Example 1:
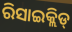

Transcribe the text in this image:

ରିସାଇକ୍ଲିଡ୍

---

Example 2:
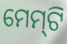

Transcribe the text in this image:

ମେମ୍‍ଟି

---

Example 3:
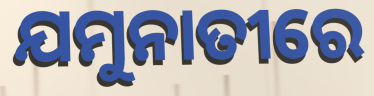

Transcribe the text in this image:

ଯମୁନାତୀରେ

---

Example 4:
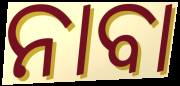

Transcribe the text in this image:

ନାବା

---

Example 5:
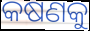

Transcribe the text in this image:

କଷଣକୁ